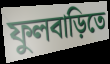
ফুলবাড়িতে